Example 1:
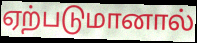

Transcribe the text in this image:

ஏற்படுமானால்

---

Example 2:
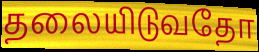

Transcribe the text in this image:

தலையிடுவதோ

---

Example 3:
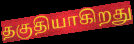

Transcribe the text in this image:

தகுதியாகிறது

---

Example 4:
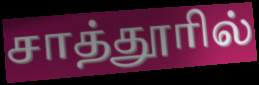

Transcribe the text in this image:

சாத்தூரில்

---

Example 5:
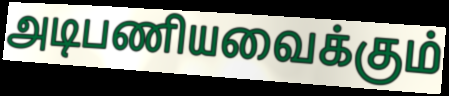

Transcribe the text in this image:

அடிபணியவைக்கும்